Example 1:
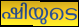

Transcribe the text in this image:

ഷിയുടെ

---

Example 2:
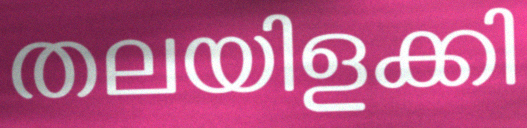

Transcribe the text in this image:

തലയിളക്കി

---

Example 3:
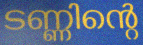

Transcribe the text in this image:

ടണ്ണിന്റെ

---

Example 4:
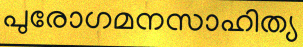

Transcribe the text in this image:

പുരോഗമനസാഹിത്യ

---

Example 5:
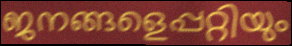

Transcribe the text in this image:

ജനങ്ങളെപ്പറ്റിയും